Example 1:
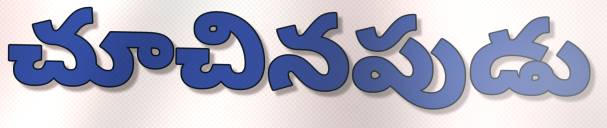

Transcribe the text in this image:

చూచినపుడు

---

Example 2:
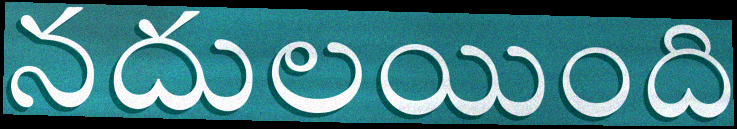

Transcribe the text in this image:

నదులయింది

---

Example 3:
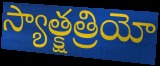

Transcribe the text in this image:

స్యాత్క్షత్రియో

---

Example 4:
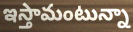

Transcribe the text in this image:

ఇస్తామంటున్నా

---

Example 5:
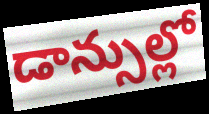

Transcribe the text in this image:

డాన్సుల్లో